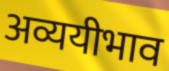
अव्ययीभाव